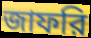
জাফরি